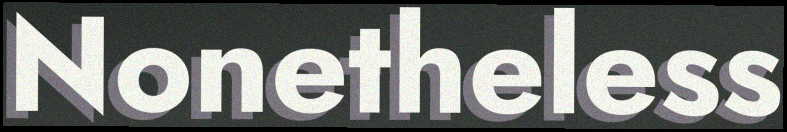
Nonetheless